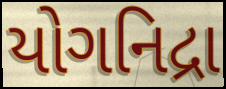
યોગનિદ્રા